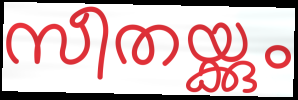
സീതയ്ക്കും